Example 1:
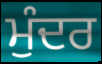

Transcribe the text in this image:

ਮੁੰਦਰ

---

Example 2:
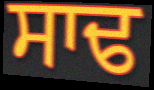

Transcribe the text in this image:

ਸਾਢ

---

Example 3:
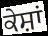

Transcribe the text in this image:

ਕੇਸ਼ਾਂ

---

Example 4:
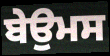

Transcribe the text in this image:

ਬੇਉਮਸ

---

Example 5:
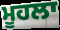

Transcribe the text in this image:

ਮੂਹਲਾ